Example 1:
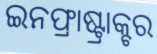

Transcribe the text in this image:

ଇନଫ୍ରାଷ୍ଟ୍ରାକ୍ଚର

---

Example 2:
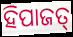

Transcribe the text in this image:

ହିପାଜତ୍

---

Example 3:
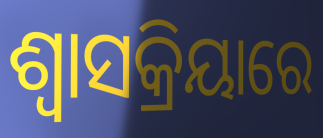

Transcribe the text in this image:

ଶ୍ୱାସକ୍ରିୟାରେ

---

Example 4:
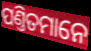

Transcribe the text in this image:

ପଣ୍ତିତମାନେ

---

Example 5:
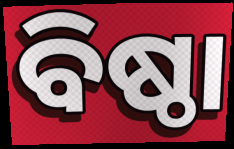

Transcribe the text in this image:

ବିଷ୍ଠା